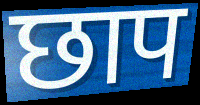
छाप